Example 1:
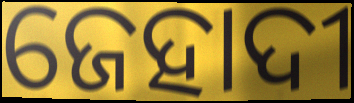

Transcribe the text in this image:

ଜେହାଦୀ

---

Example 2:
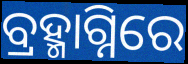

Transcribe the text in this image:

ବ୍ରହ୍ମାଗ୍ନିରେ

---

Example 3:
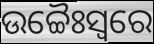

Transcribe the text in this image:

ଉଚ୍ଚୈଃସ୍ୱରେ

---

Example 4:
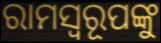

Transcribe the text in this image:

ରାମସ୍ୱରୂପଙ୍କୁ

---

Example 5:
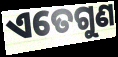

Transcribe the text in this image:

ଏତେଗୁଣ